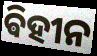
ଵିହୀନ